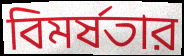
বিমর্ষতার